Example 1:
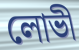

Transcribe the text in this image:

লোভী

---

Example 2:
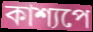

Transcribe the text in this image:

কাশ্যপে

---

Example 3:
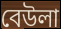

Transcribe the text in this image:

বেউলা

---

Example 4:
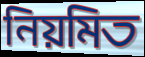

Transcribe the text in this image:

নিয়মিত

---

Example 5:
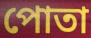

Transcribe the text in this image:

পোতা